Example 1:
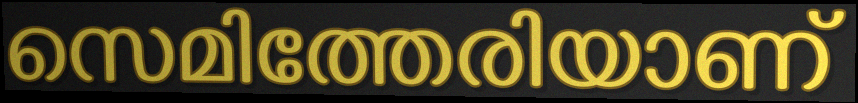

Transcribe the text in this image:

സെമിത്തേരിയാണ്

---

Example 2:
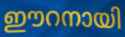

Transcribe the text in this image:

ഈറനായി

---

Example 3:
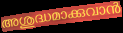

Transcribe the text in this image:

അശുദ്ധമാക്കുവാൻ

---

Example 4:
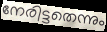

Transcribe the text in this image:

നേരിട്ടതെന്നും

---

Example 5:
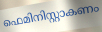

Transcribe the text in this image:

ഫെമിനിസ്റ്റാകണം